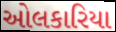
ઓલકારિયા